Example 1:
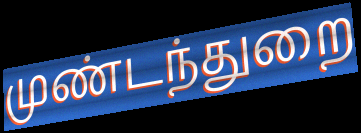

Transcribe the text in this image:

முண்டந்துறை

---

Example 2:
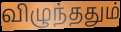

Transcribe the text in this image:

விழுந்ததும்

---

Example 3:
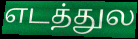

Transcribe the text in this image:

எடத்துல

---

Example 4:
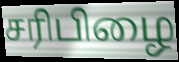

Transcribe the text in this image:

சரிபிழை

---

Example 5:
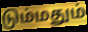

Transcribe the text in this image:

டும்மதும்